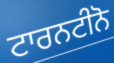
ਟਾਰਨਟੀਨੋ